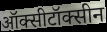
ऑक्सीटॉक्सीन